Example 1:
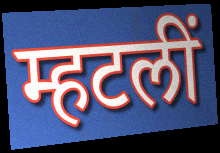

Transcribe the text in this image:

म्हटलीं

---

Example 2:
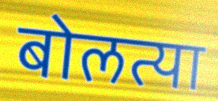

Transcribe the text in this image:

बोलत्या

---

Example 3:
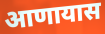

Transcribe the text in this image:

आणायास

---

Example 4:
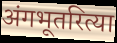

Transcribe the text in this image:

अंगभूतरित्या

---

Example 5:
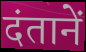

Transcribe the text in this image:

दंतानें